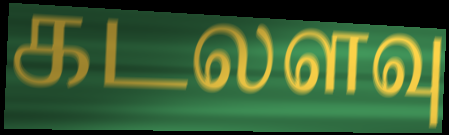
கடலளவு